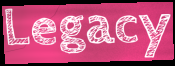
Legacy